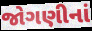
જોગણીનાં